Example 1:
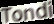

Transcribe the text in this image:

Tondi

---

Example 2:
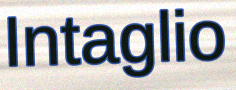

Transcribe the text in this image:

Intaglio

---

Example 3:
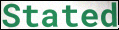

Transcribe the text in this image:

Stated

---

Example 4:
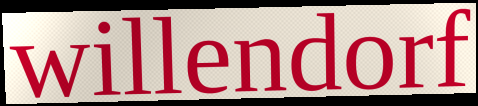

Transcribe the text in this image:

willendorf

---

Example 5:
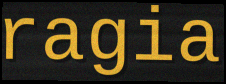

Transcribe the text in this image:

ragia